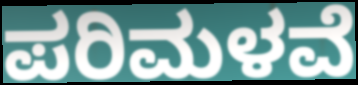
ಪರಿಮಳವೆ